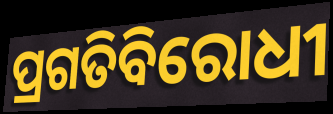
ପ୍ରଗତିବିରୋଧୀ